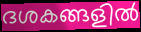
ദശകങ്ങളിൽ